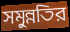
সমুন্নতির